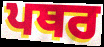
ਪਥਰ